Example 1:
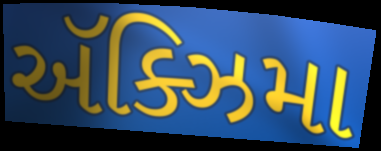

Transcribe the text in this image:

ઍક્ઝિમા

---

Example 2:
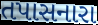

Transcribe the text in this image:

તપાસનારા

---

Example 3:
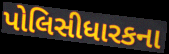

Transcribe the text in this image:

પોલિસીધારકના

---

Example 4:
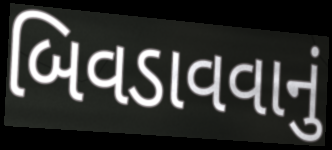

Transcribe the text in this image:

બિવડાવવાનું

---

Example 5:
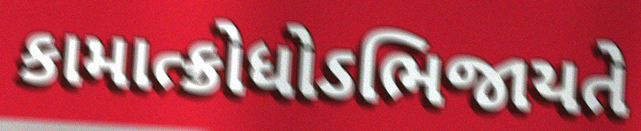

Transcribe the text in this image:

કામાત્ક્રોધોઽભિજાયતે